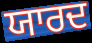
ਯਾਰਦ